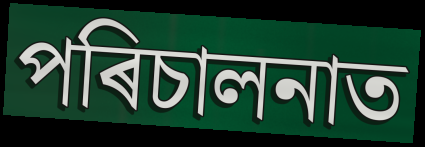
পৰিচালনাত